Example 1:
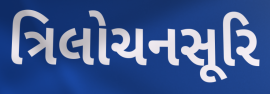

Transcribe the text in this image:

ત્રિલોચનસૂરિ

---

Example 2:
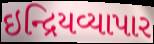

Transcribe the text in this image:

ઇન્દ્રિયવ્યાપાર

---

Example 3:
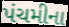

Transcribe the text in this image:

પંચમીના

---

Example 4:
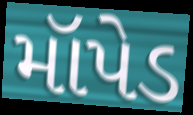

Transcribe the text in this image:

મૉપેડ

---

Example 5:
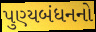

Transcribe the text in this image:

પુણ્યબંધનનો